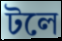
টলে